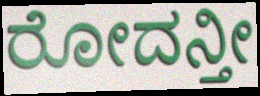
ರೋದನ್ತೀ